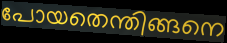
പോയതെന്തിങ്ങനെ